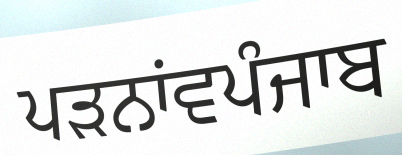
ਪੜਨਾਂਵਪੰਜਾਬ